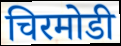
चिरमोडी